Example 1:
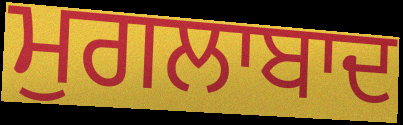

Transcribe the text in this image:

ਮੁਗਲਾਬਾਦ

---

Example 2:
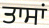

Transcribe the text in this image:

ਤਾਸਾਂ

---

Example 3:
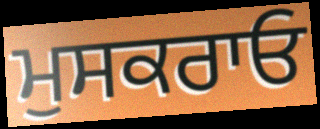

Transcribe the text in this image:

ਮੁਸਕਰਾਓ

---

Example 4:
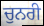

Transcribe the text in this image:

ਚੁਨਰੀ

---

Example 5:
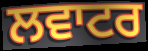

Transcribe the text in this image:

ਲਵਾਟਰ